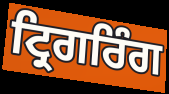
ਟ੍ਰਿਗਰਿੰਗ